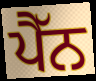
ਪੈੱਨ